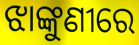
ଝାଙ୍କୁଣୀରେ